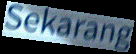
Sekarang